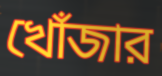
খোঁজার